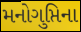
મનોગુપ્તિના